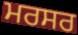
ਮਰਸਰ